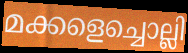
മക്കളെച്ചൊല്ലി